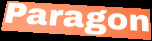
Paragon